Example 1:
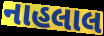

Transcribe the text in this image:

નાહલાલ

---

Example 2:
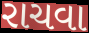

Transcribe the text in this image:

રાચવા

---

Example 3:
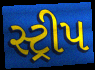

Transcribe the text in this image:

સ્ટ્રીપ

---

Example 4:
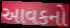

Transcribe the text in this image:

આવકનો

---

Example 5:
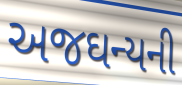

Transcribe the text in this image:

અજઘન્યની